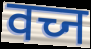
वच्न